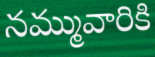
నమ్మువారికి